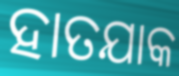
ହାତଯାକ